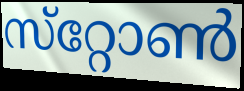
സ്‌റ്റോൺ